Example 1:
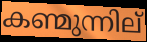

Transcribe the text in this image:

കണ്മുന്നില്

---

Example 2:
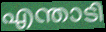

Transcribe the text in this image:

എന്താടി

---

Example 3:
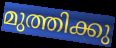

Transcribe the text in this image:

മുത്തിക്കു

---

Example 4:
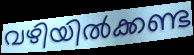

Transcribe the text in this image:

വഴിയിൽക്കണ്ട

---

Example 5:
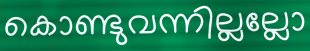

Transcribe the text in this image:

കൊണ്ടുവന്നില്ലല്ലോ